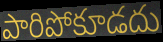
పారిపోకూడదు